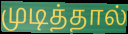
முடித்தால்